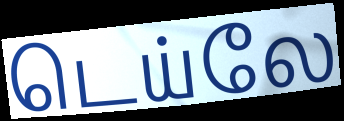
டெய்லே